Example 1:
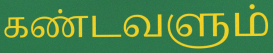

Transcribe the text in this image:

கண்டவளும்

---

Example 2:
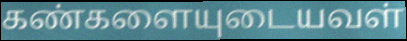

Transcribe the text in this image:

கண்களையுடையவள்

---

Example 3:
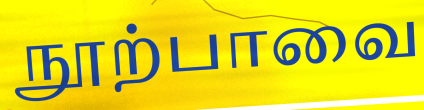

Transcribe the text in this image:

நூற்பாவை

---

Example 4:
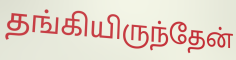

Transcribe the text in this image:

தங்கியிருந்தேன்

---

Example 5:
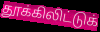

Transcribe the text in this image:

தூக்கிலிட்டுக்